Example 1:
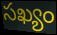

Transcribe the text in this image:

సఖ్యం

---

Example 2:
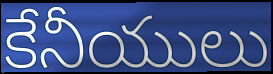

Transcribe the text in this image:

కేనీయులు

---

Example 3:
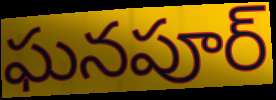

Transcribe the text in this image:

ఘనపూర్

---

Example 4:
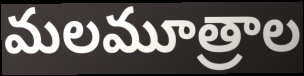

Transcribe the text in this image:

మలమూత్రాల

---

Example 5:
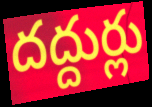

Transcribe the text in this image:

దద్దుర్లు